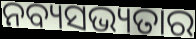
ନବ୍ୟସଭ୍ୟତାର